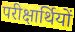
परीक्षार्थियों